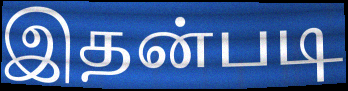
இதன்படி